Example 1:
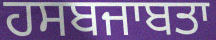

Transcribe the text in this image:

ਹਸਬਜਾਬਤਾ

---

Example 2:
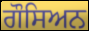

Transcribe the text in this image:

ਗੌਸਿਅਨ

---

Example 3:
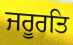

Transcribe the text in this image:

ਜਰੂਰਤਿ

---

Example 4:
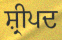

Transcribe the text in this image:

ਸ਼੍ਰੀਪਦ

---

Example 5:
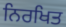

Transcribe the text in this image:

ਨਿਰਖਿਤ